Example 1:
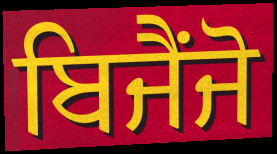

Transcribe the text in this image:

ਬਿਜੈਂਜੋ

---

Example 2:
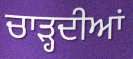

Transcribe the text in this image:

ਚਾੜ੍ਹਦੀਆਂ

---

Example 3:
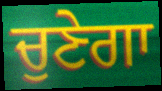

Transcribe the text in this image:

ਚੁਣੇਗਾ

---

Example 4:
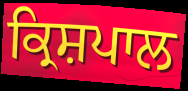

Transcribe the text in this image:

ਕ੍ਰਿਸ਼ਪਾਲ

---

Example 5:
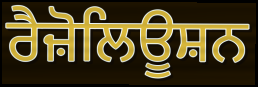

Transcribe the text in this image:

ਰੈਜ਼ੋਲਿਊਸ਼ਨ